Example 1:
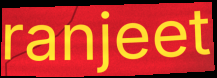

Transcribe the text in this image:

ranjeet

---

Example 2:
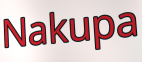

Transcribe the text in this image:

Nakupa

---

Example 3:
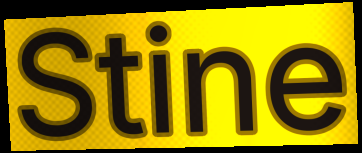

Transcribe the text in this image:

Stine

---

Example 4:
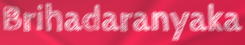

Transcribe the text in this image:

Brihadaranyaka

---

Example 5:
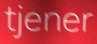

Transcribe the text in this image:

tjener